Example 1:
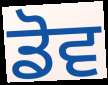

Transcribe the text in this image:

ਡੋਵ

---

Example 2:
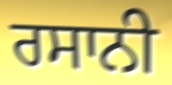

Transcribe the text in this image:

ਰਸਾਨੀ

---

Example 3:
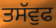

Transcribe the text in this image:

ਤਸੱਵੁਫ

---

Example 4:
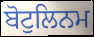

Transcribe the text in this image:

ਬੋਟੁਲਿਨਮ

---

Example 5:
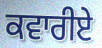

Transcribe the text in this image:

ਕਵਾਰੀਏ